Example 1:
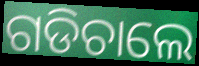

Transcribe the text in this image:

ଗଡିଚାଲେ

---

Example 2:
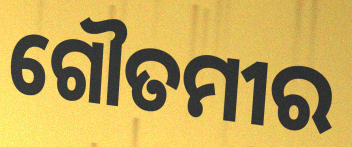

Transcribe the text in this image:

ଗୌତମୀର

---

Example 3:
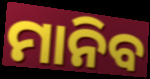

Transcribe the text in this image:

ମାନିବ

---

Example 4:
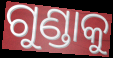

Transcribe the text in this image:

ଗୁଣ୍ଡାକୁ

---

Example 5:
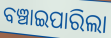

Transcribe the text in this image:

ବଞ୍ଚାଇପାରିଲା